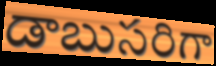
డాబుసరిగా